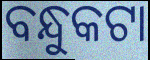
ବନ୍ଧୁକଟା